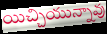
యిచ్చియున్నావు